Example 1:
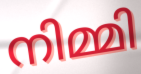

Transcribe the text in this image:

നിമ്മി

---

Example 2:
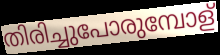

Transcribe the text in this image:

തിരിച്ചുപോരുമ്പോള്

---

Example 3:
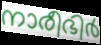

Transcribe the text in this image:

നാരീഭിർ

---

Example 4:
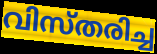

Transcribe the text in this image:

വിസ്തരിച്ച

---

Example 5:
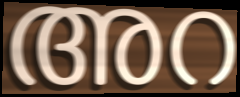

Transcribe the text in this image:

അറ